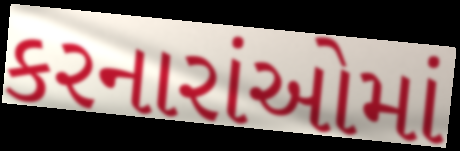
કરનારાંઓમાં